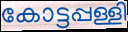
കോട്ടപ്പള്ളി